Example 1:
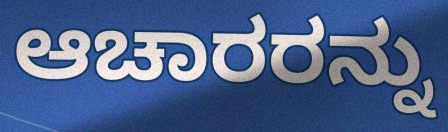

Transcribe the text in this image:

ಆಚಾರರನ್ನು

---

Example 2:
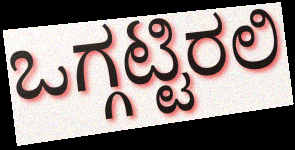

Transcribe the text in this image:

ಒಗ್ಗಟ್ಟಿರಲಿ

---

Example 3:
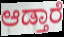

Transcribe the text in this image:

ಆಡ್ತಾರೆ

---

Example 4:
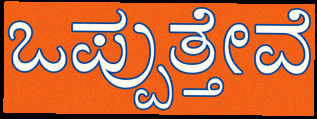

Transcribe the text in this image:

ಒಪ್ಪುತ್ತೇವೆ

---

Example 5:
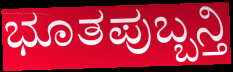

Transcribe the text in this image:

ಭೂತಪುಬ್ಬನ್ತಿ